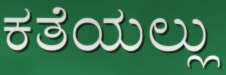
ಕತೆಯಲ್ಲು